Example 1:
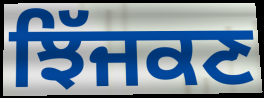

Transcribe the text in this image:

ਝਿੱਜਕਣ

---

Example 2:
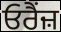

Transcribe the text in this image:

ਓਰੈਂਜ਼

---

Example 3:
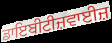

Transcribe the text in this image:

ਡਾਇਬੀਟੀਜ਼ਵਾਈਜ਼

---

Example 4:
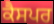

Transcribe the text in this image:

ਕੈਸਪਰ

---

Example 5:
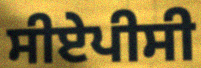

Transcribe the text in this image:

ਸੀਏਪੀਸੀ